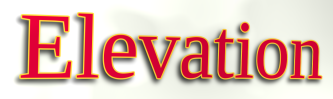
Elevation